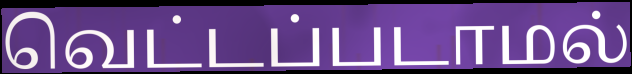
வெட்டப்படாமல்